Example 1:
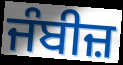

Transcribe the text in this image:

ਜੰਬੀਜ਼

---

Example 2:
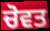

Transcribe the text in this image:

ਚੋਵਤ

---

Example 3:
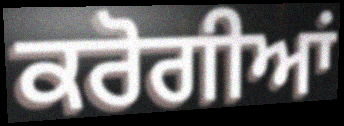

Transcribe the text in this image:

ਕਰੋਗੀਆਂ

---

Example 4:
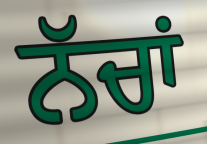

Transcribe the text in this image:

ਨੱਚਾਂ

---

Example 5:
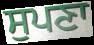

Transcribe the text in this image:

ਸੁਪਣਾ